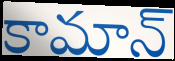
కామాన్